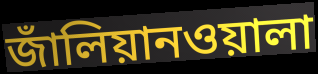
জাঁলিয়ানওয়ালা